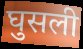
घुसली